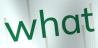
what